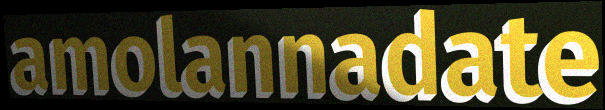
amolannadate